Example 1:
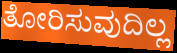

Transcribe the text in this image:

ತೋರಿಸುವುದಿಲ್ಲ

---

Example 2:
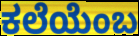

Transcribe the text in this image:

ಕಲೆಯೆಂಬ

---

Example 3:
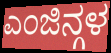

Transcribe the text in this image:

ಎಂಜಿನ್ಗಳ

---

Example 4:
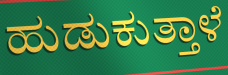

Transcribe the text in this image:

ಹುಡುಕುತ್ತಾಳೆ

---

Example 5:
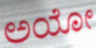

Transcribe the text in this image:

ಅಯೋ